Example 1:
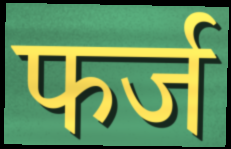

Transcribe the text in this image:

फर्ज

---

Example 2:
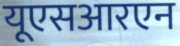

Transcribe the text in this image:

यूएसआरएन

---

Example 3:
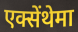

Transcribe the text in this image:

एक्सेंथेमा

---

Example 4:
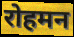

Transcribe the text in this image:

रोहमन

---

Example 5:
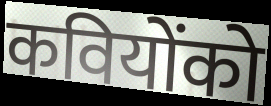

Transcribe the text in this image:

कवियोंको